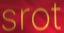
srot